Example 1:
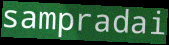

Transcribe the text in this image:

sampradai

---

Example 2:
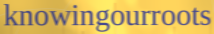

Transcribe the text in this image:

knowingourroots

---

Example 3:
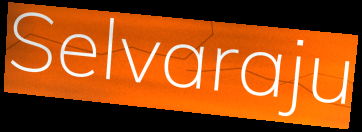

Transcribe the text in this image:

Selvaraju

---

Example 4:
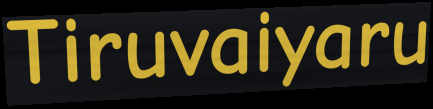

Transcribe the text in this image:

Tiruvaiyaru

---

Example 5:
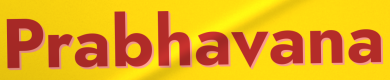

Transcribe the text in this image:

Prabhavana